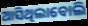
ଆସିଥିଲାବୋଲି